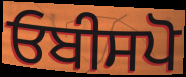
ਓਬੀਸਪੋ